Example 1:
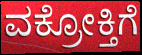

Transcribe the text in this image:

ವಕ್ರೋಕ್ತಿಗೆ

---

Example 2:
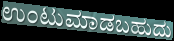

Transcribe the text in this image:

ಉಂಟುಮಾಡಬಹುದು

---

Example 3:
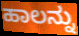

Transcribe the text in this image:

ಹಾಲನ್ನು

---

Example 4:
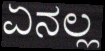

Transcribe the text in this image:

ಏನಲ್ಲ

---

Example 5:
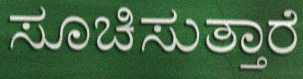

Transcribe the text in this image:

ಸೂಚಿಸುತ್ತಾರೆ